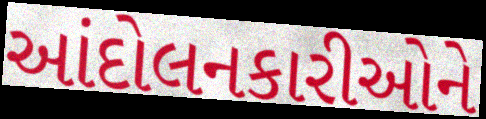
આંદોલનકારીઓને